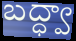
బద్ధ్వా